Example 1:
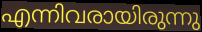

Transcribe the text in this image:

എന്നിവരായിരുന്നു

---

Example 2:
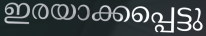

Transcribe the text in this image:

ഇരയാക്കപ്പെട്ടു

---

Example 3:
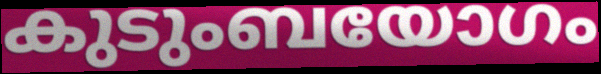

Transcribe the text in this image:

കുടുംബയോഗം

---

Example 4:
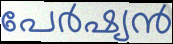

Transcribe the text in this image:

പേർഷ്യൻ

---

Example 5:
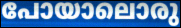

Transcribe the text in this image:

പോയാലൊരു